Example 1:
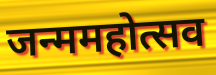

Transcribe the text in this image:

जन्ममहोत्सव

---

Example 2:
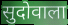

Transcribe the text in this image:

सुदोवाला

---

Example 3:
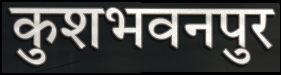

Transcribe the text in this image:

कुशभवनपुर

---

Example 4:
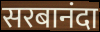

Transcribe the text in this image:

सरबानंदा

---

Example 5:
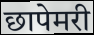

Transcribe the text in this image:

छापेमरी